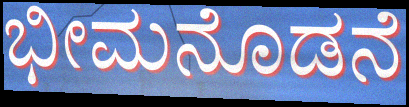
ಭೀಮನೊಡನೆ